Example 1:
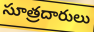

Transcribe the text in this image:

సూత్రదారులు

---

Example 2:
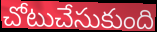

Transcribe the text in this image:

చోటుచేసుకుంది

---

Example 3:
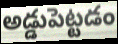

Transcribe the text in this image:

అడ్డుపెట్టడం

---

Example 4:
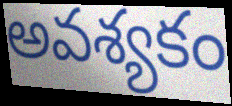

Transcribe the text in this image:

అవశ్యకం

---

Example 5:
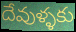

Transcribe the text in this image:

దేవుళ్ళకు